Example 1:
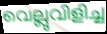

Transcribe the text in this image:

വെല്ലുവിളിച്ച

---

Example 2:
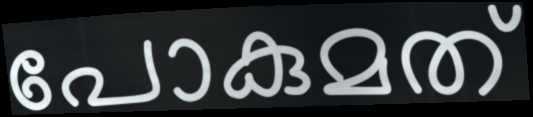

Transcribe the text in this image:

പോകുമത്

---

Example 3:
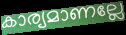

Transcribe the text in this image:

കാര്യമാണല്ലേ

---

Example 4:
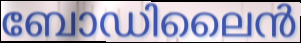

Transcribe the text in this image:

ബോഡിലൈൻ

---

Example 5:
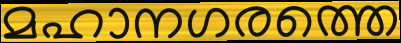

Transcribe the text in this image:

മഹാനഗരത്തെ